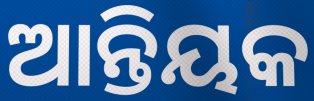
ଆନ୍ତିୟକ